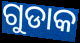
ଗୁଡାକ